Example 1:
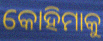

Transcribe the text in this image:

କୋହିମାକୁ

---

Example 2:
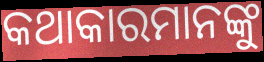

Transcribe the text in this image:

କଥାକାରମାନଙ୍କୁ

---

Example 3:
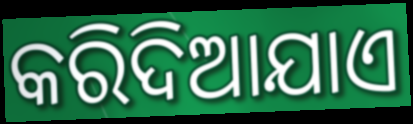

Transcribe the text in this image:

କରିଦିଆଯାଏ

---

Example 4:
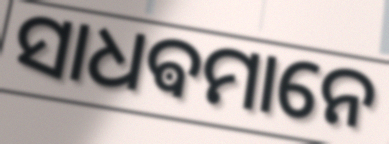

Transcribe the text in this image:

ସାଧଵମାନେ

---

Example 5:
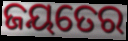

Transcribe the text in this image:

ଜୟତେର